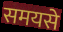
समयसे